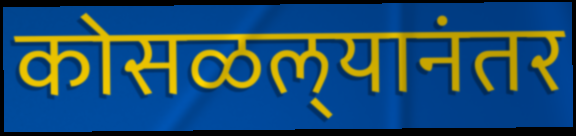
कोसळल्यानंतर